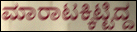
ಮಾರಾಟಕ್ಕಿಟ್ಟಿದ್ದ